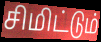
சிமிட்டும்